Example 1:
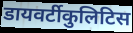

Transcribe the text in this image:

डायवर्टीकुलिटिस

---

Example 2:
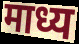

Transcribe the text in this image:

माध्य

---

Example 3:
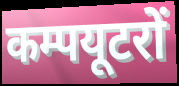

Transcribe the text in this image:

कम्पयूटरों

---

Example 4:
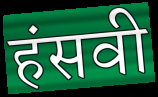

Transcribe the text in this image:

हंसवी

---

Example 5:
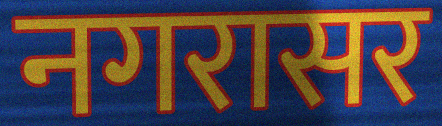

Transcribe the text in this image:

नगरासर